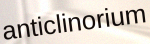
anticlinorium